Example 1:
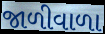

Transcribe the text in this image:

જાળીવાળા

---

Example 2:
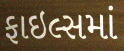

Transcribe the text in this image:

ફાઇલ્સમાં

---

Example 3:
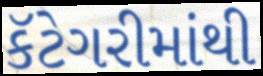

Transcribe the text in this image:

કૅટેગરીમાંથી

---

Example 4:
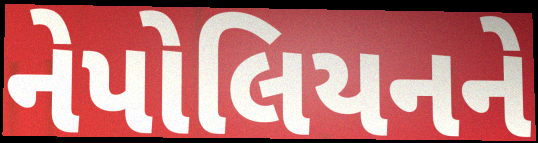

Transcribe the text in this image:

નેપોલિયનને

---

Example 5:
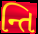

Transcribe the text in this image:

ન્તિ